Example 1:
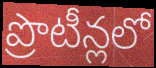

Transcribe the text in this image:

ప్రొటీన్లలో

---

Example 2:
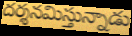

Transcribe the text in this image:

దర్శనమిస్తున్నాడు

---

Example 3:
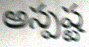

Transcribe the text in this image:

అస్పష్ట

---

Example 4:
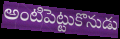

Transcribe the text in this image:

అంటిపెట్టుకొనుడు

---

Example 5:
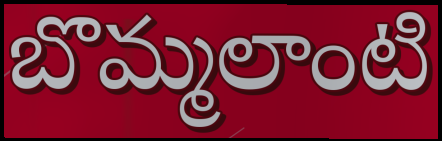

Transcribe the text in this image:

బొమ్మలాంటి